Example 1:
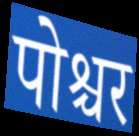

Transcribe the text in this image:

पोश्चर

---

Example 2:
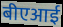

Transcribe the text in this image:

बीएआई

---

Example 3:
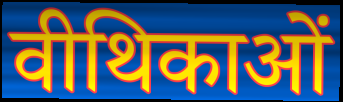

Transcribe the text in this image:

वीथिकाओं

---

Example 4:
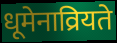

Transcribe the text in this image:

धूमेनाव्रियते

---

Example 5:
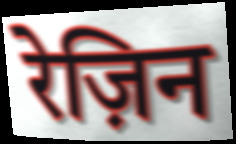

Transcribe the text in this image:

रेज़िन